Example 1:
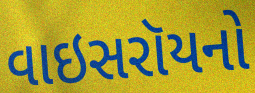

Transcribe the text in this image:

વાઇસરૉયનો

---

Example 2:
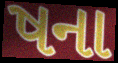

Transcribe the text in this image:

ષના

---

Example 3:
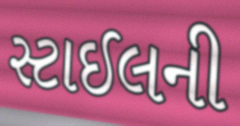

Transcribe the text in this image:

સ્ટાઈલની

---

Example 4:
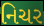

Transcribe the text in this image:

નિચર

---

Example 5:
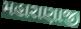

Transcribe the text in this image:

મહારાણાજી